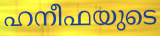
ഹനീഫയുടെ